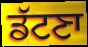
ਡੱਟਣਾ